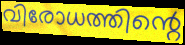
വിരോധത്തിന്റെ